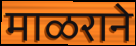
माळराने